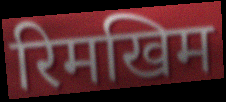
रिमखिम